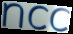
ncc